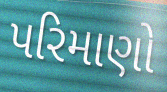
પરિમાણો